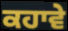
ਕਹਾਵੇ